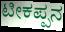
ಟೀಕಪ್ಪನ